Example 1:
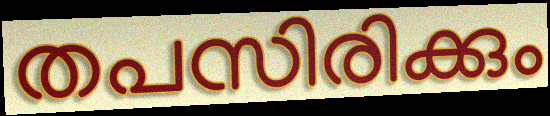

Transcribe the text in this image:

തപസിരിക്കും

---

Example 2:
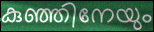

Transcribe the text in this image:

കുഞ്ഞിനേയും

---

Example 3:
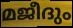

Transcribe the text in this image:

മജീദും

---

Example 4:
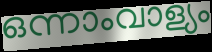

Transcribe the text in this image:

ഒന്നാംവാള്യം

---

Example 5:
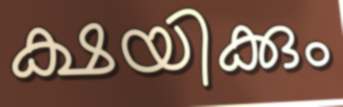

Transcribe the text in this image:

ക്ഷയിക്കും